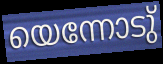
യെന്നോടു്